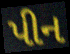
પીન